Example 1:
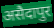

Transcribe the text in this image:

असैदापुर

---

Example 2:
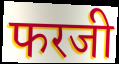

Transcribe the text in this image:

फरजी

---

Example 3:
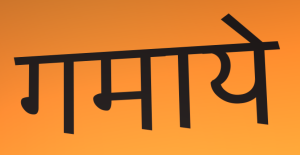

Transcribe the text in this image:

गमाये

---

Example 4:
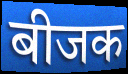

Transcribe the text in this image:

बीजक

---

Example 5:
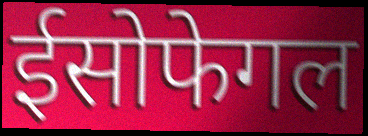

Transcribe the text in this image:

ईसोफेगल